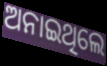
ଅନାଇଥିଲେ